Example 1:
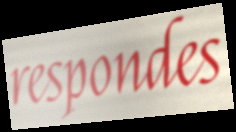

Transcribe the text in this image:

respondes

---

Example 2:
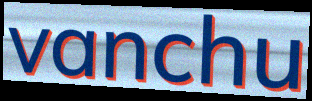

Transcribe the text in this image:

vanchu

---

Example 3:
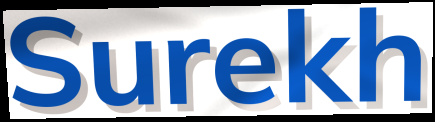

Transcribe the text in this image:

Surekh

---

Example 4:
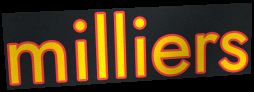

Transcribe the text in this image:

milliers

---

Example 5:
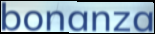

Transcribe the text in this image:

bonanza